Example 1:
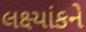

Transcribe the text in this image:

લક્ષ્યાંકને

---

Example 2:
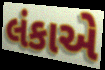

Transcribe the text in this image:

લંકાએ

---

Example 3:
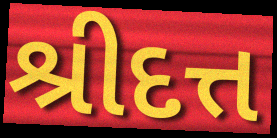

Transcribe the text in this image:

શ્રીદત્ત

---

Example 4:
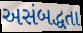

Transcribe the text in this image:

અસંબદ્ધતા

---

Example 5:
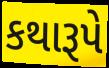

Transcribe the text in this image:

કથારૂપે